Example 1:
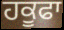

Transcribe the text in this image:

ਹਕੂਫਾ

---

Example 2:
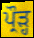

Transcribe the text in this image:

ਪ੍ਰੌੜ੍ਹ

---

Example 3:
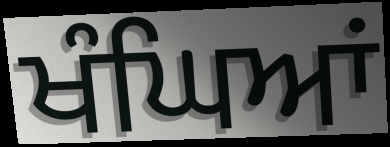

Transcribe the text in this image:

ਖੰਘਿਆਂ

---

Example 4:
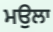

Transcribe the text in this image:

ਮਉਲਾ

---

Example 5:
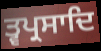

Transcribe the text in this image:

ਤ੍ਵਪ੍ਰਸਾਦਿ